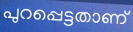
പുറപ്പെട്ടതാണ്